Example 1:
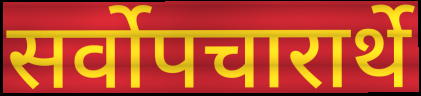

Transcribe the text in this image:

सर्वोपचारार्थे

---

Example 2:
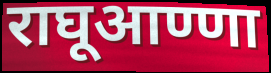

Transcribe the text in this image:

राघूआण्णा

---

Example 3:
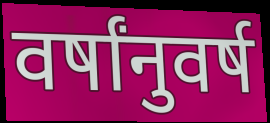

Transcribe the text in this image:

वर्षांनुवर्ष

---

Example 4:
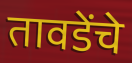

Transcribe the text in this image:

तावडेंचे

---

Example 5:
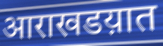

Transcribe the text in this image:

आराखडय़ात